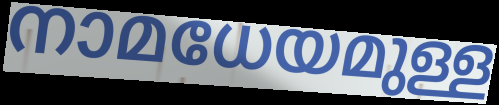
നാമധേയമുള്ള